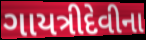
ગાયત્રીદેવીના